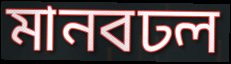
মানবঢল